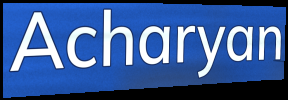
Acharyan